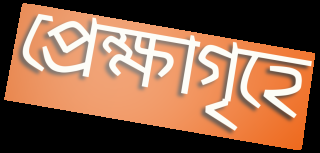
প্রেক্ষাগৃহে